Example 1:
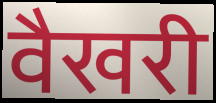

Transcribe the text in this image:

वैखरी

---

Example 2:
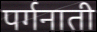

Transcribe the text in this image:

पर्गनाती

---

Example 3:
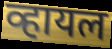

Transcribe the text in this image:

व्हायल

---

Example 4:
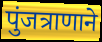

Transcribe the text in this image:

पुंजत्राणाने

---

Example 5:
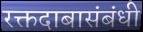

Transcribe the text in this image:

रक्तदाबासंबंधी